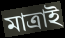
মাত্রাই